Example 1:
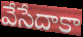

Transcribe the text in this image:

వేసేదాకా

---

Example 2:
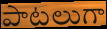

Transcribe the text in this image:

పాటలుగా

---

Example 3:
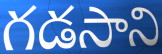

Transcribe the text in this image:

గడసాని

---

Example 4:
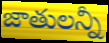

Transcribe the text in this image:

జాతులన్నీ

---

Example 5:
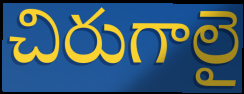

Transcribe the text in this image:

చిరుగాలై